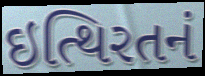
ઇત્થિરતનં